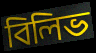
বিলিভ